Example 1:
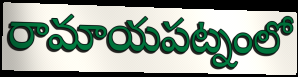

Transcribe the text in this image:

రామాయపట్నంలో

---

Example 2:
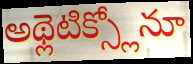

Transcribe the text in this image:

అథ్లెటిక్స్లోనూ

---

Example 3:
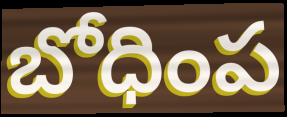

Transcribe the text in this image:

బోధింప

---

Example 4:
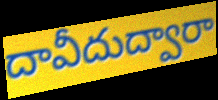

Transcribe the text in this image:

దావీదుద్వారా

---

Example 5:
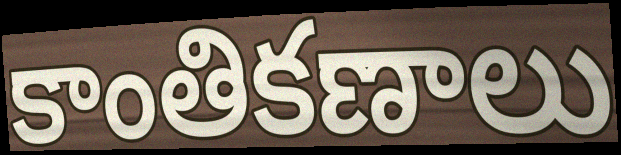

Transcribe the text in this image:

కాంతికణాలు